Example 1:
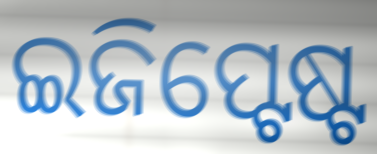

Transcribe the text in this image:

ଇଜିପ୍ଟେଷ୍ଟ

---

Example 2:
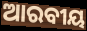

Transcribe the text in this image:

ଆରବୀୟ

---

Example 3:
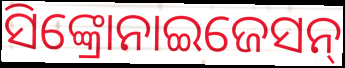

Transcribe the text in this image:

ସିଙ୍କ୍ରୋନାଇଜେସନ୍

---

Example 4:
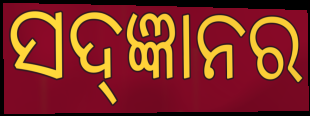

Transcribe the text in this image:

ସଦ୍‌ଜ୍ଞାନର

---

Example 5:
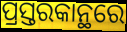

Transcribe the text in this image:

ପ୍ରସ୍ତରକାନ୍ଥରେ